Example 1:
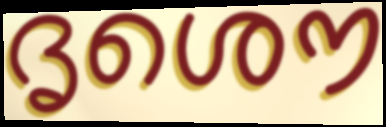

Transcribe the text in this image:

ദൃശൌ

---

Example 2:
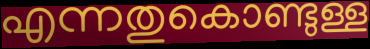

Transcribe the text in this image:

എന്നതുകൊണ്ടുള്ള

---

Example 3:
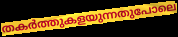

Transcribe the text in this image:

തകർത്തുകളയുന്നതുപോലെ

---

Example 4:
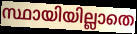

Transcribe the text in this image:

സ്ഥായിയില്ലാതെ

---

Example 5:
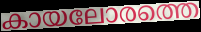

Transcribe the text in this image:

കായലോരത്തെ